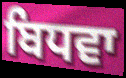
ਬਿਧਵਾ